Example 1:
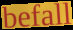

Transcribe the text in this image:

befall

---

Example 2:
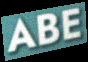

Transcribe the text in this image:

ABE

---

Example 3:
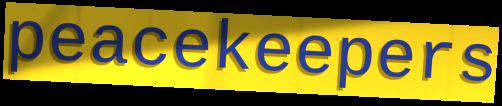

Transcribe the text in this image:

peacekeepers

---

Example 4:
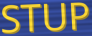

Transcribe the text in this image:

STUP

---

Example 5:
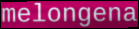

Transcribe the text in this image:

melongena